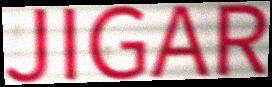
JIGAR